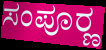
ಸಂಪೂರ್‍ಣ